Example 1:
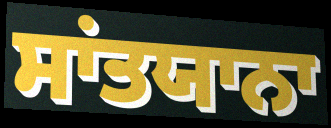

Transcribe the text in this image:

ਸਾਂਤਯਾਨਾ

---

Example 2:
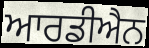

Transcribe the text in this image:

ਆਰਡੀਐਨ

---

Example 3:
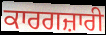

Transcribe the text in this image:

ਕਾਰਗਜ਼ਾਰੀ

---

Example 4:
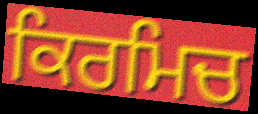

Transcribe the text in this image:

ਕਿਰਮਿਚ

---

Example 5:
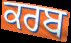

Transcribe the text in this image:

ਕਰਬ